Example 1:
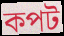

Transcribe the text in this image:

কপট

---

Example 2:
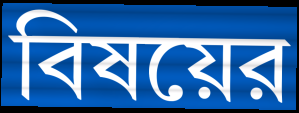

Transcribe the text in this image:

বিষয়ের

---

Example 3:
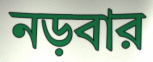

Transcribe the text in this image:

নড়বার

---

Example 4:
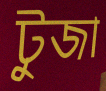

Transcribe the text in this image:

টুজা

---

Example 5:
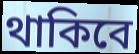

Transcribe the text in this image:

থাকিবে